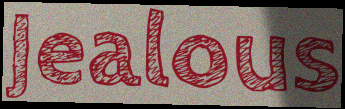
Jealous